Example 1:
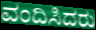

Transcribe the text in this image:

ವಂದಿಸಿದರು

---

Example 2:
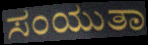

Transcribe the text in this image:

ಸಂಯುತಾ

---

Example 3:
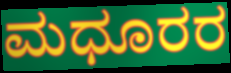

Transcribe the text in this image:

ಮಧೂರರ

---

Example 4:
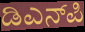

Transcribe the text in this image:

ಡಿಎನ್‌ಪಿ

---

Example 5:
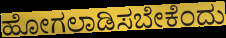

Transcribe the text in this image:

ಹೋಗಲಾಡಿಸಬೇಕೆಂದು